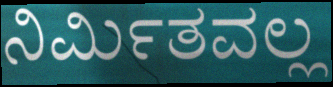
ನಿರ್ಮಿತವಲ್ಲ